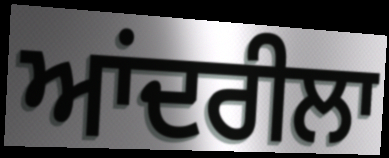
ਆਂਦਰੀਲਾ